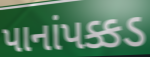
પાનાંપક્કડ